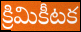
క్రిమికీటక